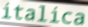
italica